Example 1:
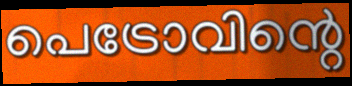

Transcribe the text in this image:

പെട്രോവിന്റെ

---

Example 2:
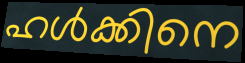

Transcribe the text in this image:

ഹൾക്കിനെ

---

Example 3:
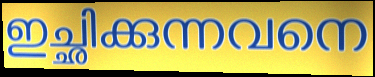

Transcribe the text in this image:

ഇച്ഛിക്കുന്നവനെ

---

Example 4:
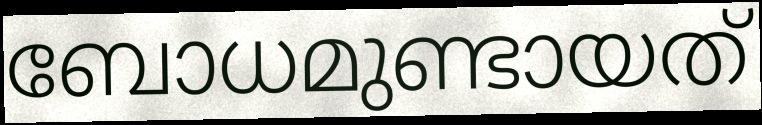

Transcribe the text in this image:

ബോധമുണ്ടായത്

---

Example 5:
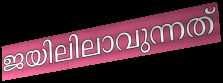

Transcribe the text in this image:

ജയിലിലാവുന്നത്